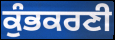
ਕੁੰਭਕਰਣੀ